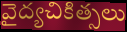
వైద్యచికిత్సలు